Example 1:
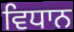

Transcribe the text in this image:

ਵਿਧਾਨ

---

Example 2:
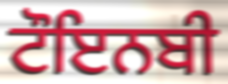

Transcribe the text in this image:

ਟੌਇਨਬੀ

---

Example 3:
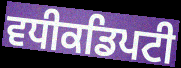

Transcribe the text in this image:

ਵਧੀਕਡਿਪਟੀ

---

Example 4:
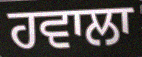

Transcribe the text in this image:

ਹਵਾਲਾ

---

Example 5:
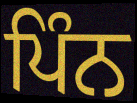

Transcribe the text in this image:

ਪਿੰਨ